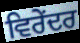
ਵਿਰੇਂਦਰ